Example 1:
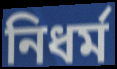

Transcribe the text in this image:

নিধর্ম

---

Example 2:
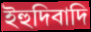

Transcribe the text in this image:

ইহুদিবাদি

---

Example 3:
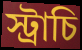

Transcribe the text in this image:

স্ট্রাচি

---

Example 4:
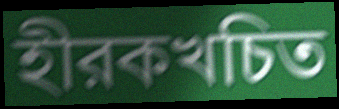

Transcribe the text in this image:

হীরকখচিত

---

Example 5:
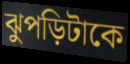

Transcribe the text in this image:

ঝুপড়িটাকে